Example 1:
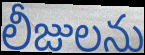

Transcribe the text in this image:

లీజులను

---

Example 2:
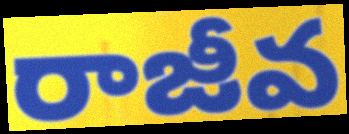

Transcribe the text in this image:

రాజీవ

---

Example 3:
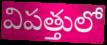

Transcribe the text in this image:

విపత్తులో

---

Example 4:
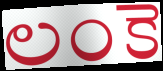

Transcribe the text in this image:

లంకె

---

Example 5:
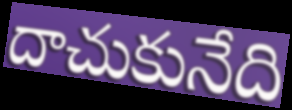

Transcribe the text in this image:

దాచుకునేది